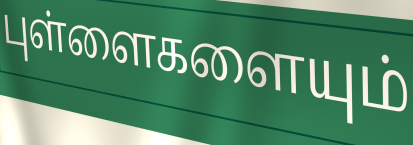
புள்ளைகளையும்